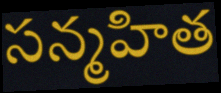
సన్మహిత